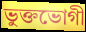
ভুক্তভোগী